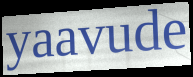
yaavude